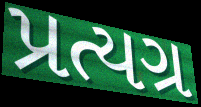
પ્રત્યગ્ર